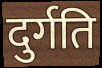
दुर्गति